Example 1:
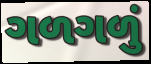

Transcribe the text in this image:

ગળગળું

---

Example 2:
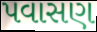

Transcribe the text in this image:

પવાસણ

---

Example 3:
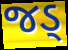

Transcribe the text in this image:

જડ્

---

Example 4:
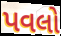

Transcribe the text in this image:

પવલો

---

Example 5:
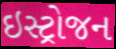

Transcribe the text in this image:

ઇસ્ટ્રોજન